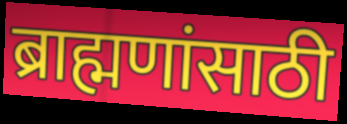
ब्राह्मणांसाठी